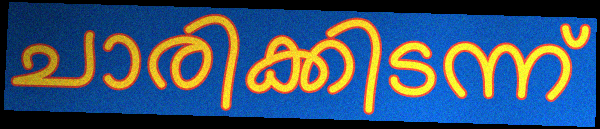
ചാരിക്കിടന്ന്